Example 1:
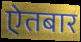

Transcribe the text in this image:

ऐतबार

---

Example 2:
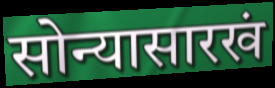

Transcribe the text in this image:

सोन्यासारखं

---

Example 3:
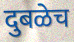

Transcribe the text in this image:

दुबळेच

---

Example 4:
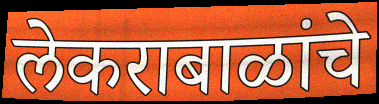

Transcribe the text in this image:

लेकराबाळांचे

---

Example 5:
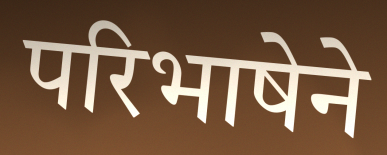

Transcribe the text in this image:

परिभाषेने